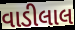
વાડીલાલ